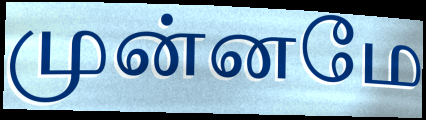
முன்னமே